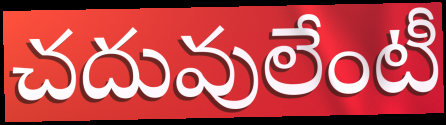
చదువులేంటీ